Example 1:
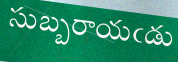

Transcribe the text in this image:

సుబ్బరాయఁడు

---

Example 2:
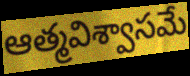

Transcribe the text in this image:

ఆత్మవిశ్వాసమే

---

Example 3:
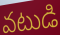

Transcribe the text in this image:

వటుడి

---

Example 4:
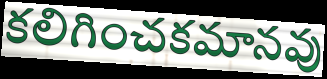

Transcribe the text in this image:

కలిగించకమానవు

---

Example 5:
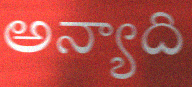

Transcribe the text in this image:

అన్యాది